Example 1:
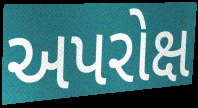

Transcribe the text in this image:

અપરોક્ષ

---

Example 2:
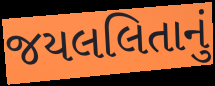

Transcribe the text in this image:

જયલલિતાનું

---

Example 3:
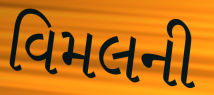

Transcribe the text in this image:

વિમલની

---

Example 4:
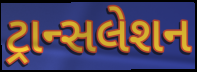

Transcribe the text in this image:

ટ્રાન્સલેશન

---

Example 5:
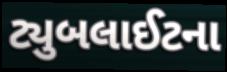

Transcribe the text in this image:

ટ્યુબલાઈટના